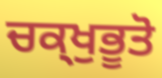
ਚਕ੍ਖੁਭੂਤੋ